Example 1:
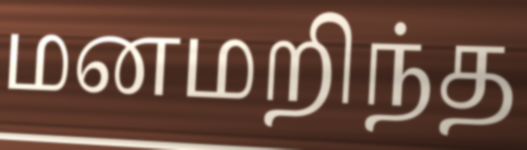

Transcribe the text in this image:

மனமறிந்த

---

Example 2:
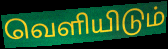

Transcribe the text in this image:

வெளியிடும்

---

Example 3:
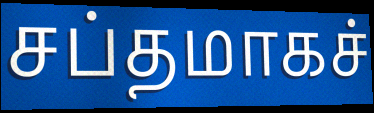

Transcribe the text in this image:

சப்தமாகச்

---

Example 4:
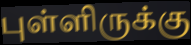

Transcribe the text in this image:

புள்ளிருக்கு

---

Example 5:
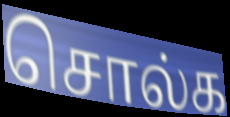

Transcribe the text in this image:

சொல்க